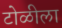
टोळीला